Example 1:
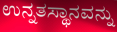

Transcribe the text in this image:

ಉನ್ನತಸ್ಥಾನವನ್ನು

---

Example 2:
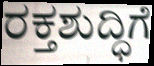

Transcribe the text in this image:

ರಕ್ತಶುದ್ಧಿಗೆ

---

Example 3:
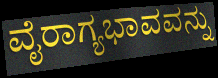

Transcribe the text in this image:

ವೈರಾಗ್ಯಭಾವವನ್ನು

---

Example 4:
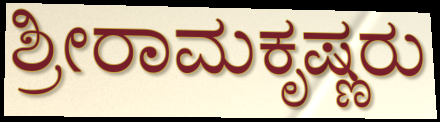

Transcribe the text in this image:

ಶ್ರೀರಾಮಕೃಷ್ಣರು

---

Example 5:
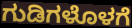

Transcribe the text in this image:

ಗುಡಿಗಳೊಳಗೆ